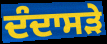
ਦੰਦਾਸੜੇ